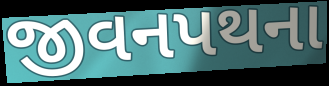
જીવનપથના